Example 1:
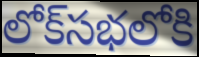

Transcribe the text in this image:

లోక్‌సభలోకి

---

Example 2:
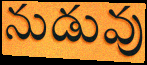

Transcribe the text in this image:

నుడువు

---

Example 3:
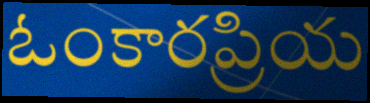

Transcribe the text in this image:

ఓంకారప్రియ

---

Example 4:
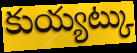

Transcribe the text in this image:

కుయ్యట్కు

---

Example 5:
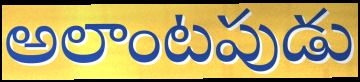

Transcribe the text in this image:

అలాంటపుడు